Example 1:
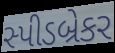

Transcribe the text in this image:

સ્પીડબ્રેકર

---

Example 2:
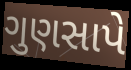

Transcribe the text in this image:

ગુણસાપે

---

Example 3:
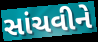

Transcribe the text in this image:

સાંચવીને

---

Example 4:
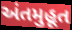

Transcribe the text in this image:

અંતમુહૂત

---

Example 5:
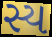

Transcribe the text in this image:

સ્ય